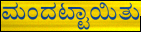
ಮಂದಟ್ಟಾಯಿತು